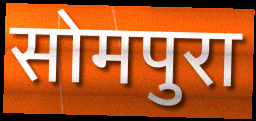
सोमपुरा